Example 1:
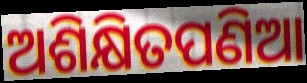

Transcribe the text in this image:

ଅଶିକ୍ଷିତପଣିଆ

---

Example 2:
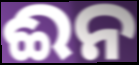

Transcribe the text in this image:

ଈନ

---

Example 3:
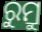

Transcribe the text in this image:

ରୁମ୍ରୁ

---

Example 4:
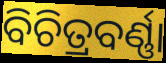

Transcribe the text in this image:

ବିଚିତ୍ରବର୍ଣ୍ଣା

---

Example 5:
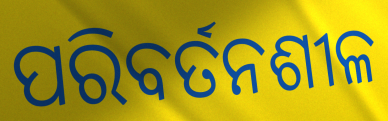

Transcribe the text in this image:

ପରିବର୍ତନଶୀଳ